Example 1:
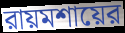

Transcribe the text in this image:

রায়মশায়ের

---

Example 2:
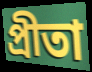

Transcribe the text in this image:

প্রীতা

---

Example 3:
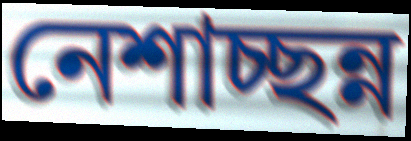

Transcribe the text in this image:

নেশাচ্ছন্ন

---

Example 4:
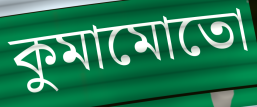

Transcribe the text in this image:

কুমামোতো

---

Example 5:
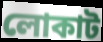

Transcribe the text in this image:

লোকাট